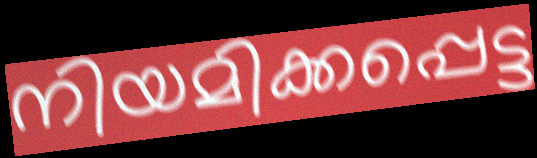
നിയമിക്കപ്പെട്ട